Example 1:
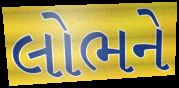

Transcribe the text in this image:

લોભને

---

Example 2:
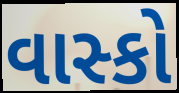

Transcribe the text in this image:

વાસ્કો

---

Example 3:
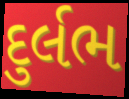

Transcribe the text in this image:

દુર્લભ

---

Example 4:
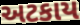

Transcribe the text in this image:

અટકાય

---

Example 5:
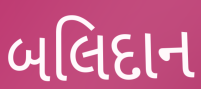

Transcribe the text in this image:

બલિદાન